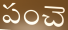
పంచె